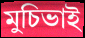
মুচিভাই